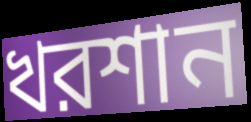
খরশান